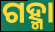
ଗହ୍ମା